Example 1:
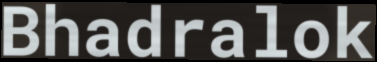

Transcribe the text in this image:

Bhadralok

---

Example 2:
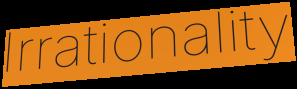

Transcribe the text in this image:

Irrationality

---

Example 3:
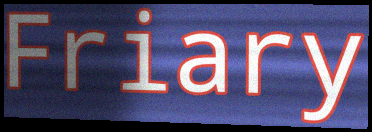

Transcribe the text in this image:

Friary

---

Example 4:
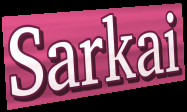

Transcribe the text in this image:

Sarkai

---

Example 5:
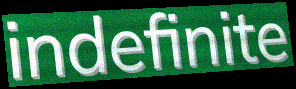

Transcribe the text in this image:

indefinite